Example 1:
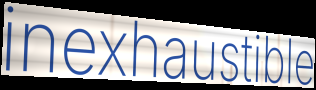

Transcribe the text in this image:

inexhaustible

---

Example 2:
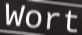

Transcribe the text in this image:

Wort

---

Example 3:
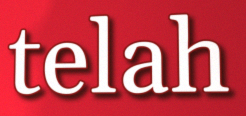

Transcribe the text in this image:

telah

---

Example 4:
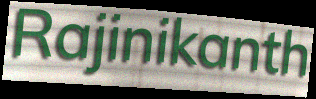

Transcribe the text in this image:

Rajinikanth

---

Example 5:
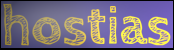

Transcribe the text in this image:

hostias